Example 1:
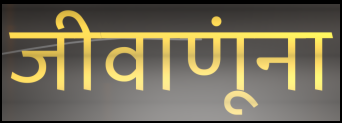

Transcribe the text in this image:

जीवाणूंना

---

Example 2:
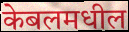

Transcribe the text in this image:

केबलमधील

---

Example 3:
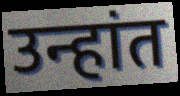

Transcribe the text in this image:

उन्हांत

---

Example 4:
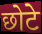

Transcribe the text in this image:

छोटे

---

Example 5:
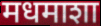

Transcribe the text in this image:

मधमाशा